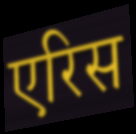
एरिस